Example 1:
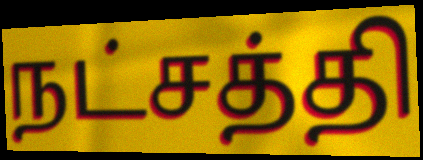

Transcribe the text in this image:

நட்சத்தி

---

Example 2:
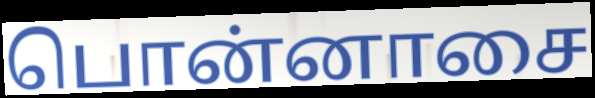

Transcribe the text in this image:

பொன்னாசை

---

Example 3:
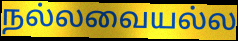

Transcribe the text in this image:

நல்லவையல்ல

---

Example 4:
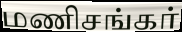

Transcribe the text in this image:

மணிசங்கர்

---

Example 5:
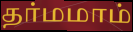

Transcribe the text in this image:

தர்மமாம்